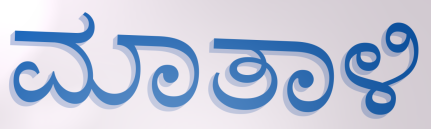
ಮಾತಾಳಿ